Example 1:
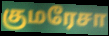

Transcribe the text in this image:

குமரேசா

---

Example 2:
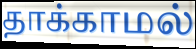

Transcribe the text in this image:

தாக்காமல்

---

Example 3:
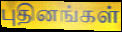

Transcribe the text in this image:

புதினங்கள்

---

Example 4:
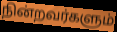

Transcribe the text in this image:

நின்றவர்களும்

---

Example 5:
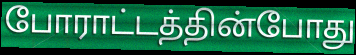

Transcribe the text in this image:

போராட்டத்தின்போது